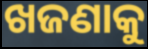
ଖଜଣାକୁ